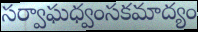
సర్వాఘధ్వంసకమాద్యం